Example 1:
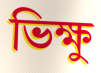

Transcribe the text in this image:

ভিক্ষু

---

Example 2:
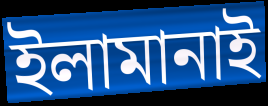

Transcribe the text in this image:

ইলামানাই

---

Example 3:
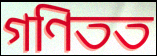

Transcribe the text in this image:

গণিতত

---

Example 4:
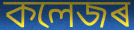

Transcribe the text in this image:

কলেজৰ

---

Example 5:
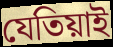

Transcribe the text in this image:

যেতিয়াই